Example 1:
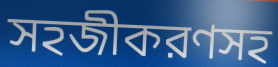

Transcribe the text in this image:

সহজীকরণসহ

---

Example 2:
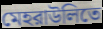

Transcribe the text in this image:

মেহরাউলিতে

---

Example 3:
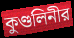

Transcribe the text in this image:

কুণ্ডলিনীর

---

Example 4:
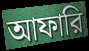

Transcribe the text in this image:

আফারি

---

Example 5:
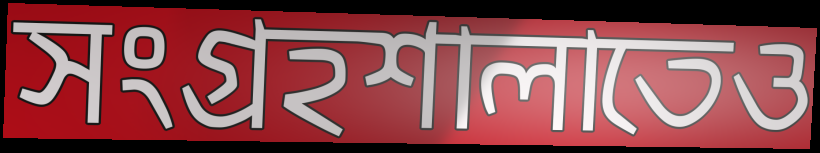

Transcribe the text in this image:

সংগ্রহশালাতেও